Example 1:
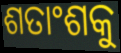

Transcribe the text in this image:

ଶତାଂଶକୁ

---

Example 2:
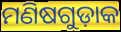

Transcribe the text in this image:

ମଣିଷଗୁଡ଼ାକ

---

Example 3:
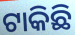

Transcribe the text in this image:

ଟାକିଛି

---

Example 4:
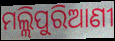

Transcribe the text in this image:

ମଲ୍ଲିପୁରିଆଣୀ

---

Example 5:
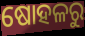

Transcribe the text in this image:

ଷୋହଳରୁ